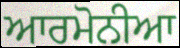
ਆਰਮੋਨੀਆ